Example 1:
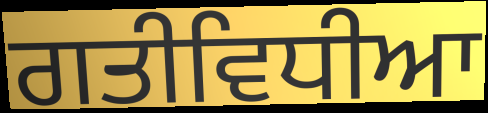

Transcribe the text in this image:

ਗਤੀਵਿਧੀਆ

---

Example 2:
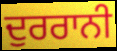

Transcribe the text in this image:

ਦੁਰਰਾਨੀ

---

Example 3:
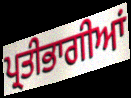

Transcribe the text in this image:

ਪ੍ਰਤੀਭਾਗੀਆਂ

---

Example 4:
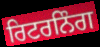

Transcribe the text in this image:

ਰਿਟਰਨਿੰਗ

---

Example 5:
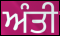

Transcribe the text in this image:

ਅੰਤੀ